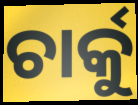
ଚାର୍କୁ